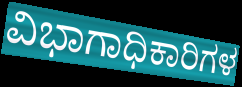
ವಿಭಾಗಾಧಿಕಾರಿಗಳ